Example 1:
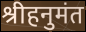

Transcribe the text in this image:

श्रीहनुमंत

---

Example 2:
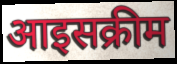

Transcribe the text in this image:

आइसक्रीम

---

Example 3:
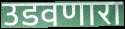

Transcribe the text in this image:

उडवणारा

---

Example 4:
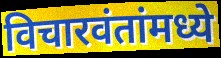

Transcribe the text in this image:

विचारवंतांमध्ये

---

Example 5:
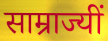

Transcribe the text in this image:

साम्राज्यीं